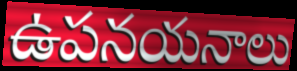
ఉపనయనాలు